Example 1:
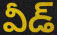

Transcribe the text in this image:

వీడ్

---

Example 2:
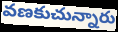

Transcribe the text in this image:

వణకుచున్నారు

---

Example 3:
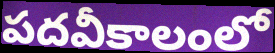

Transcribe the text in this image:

పదవీకాలంలో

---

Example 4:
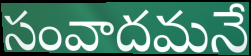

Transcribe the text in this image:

సంవాదమనే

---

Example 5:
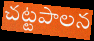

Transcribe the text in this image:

చట్టపాలన